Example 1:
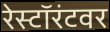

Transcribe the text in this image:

रेस्टॉरंटवर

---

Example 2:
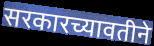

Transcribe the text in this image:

सरकारच्यावतीने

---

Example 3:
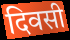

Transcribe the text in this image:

दिवसी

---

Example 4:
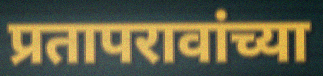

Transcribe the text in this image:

प्रतापरावांच्या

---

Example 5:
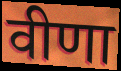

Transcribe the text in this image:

वीणा